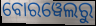
ବୋରୱେଲରୁ